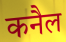
कनैल